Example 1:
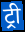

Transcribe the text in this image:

ट्री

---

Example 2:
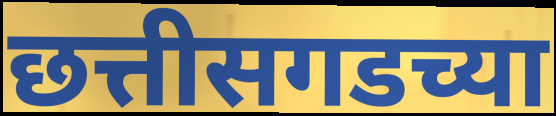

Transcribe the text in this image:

छत्तीसगडच्या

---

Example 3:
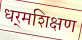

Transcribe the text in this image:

धर्मशिक्षण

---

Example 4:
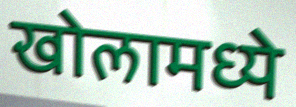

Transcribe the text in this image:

खोलामध्ये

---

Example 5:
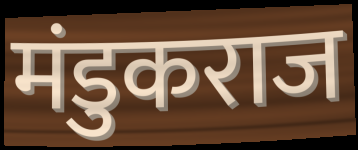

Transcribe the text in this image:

मंडुकराज